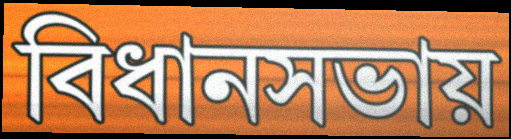
বিধানসভায়